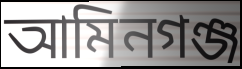
আমিনগঞ্জ